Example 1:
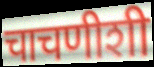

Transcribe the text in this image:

चाचणीशी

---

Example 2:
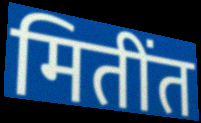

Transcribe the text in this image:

मितींत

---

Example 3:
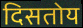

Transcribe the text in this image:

दिसतोय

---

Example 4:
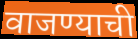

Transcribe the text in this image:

वाजण्याची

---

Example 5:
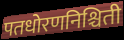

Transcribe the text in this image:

पतधोरणनिश्चिती